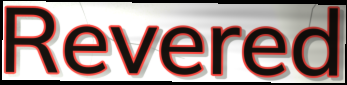
Revered